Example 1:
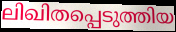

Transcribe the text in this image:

ലിഖിതപ്പെടുത്തിയ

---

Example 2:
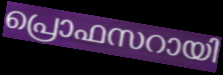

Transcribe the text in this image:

പ്രൊഫസറായി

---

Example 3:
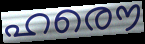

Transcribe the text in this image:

ഹരൌ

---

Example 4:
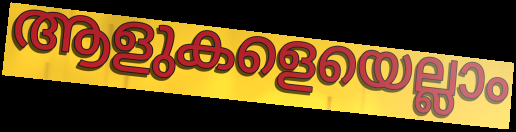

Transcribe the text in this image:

ആളുകളെയെല്ലാം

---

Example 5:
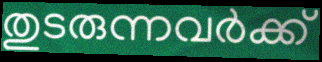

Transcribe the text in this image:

തുടരുന്നവർക്ക്